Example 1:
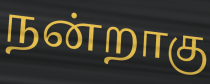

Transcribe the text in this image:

நன்றாகு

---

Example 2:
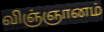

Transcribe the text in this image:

விஞ்ஞானம்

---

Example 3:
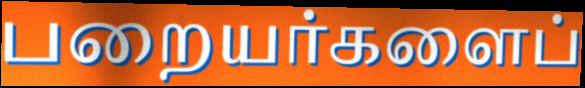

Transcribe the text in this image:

பறையர்களைப்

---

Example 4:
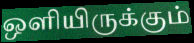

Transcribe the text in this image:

ஒளியிருக்கும்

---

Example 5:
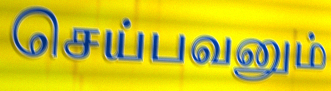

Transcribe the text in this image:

செய்பவனும்